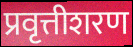
प्रवृत्तीशरण